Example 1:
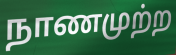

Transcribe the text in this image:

நாணமுற்ற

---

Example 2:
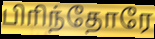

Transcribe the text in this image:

பிரிந்தோரே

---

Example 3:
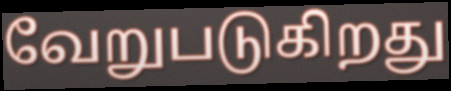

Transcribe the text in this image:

வேறுபடுகிறது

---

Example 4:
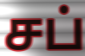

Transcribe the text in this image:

சப்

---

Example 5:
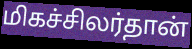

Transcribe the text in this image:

மிகச்சிலர்தான்